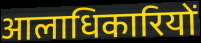
आलाधिकारियों